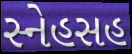
સ્નેહસહ